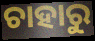
ଚାହାରୁ